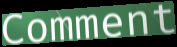
Comment